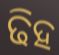
ଢିହ